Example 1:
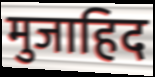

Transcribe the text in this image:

मुजाहिद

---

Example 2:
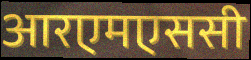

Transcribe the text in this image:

आरएमएससी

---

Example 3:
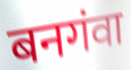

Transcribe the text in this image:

बनगंवा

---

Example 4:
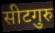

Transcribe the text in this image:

सीटगुरु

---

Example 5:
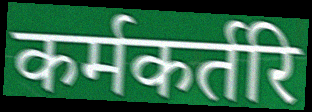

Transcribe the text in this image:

कर्मकर्तरि